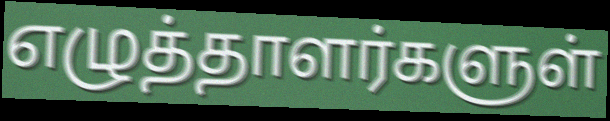
எழுத்தாளர்களுள்